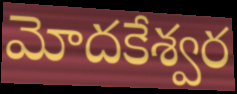
మోదకేశ్వర